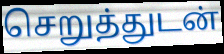
செறுத்துடன்